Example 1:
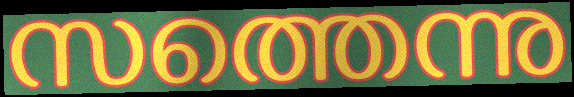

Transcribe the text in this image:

സത്തെന്നു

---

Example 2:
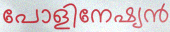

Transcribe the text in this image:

പോളിനേഷ്യൻ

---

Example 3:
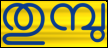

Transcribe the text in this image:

തുമ്പു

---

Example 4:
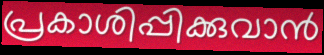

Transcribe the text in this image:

പ്രകാശിപ്പിക്കുവാൻ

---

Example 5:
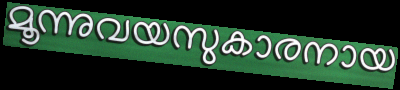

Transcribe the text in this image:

മൂന്നുവയസുകാരനായ